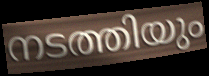
നടത്തിയും